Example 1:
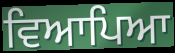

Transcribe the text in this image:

ਵਿਆਪਿਆ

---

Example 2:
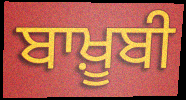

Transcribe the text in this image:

ਬਾਖ਼ੂਬੀ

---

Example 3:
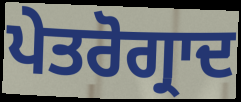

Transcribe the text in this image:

ਪੇਤਰੋਗ੍ਰਾਦ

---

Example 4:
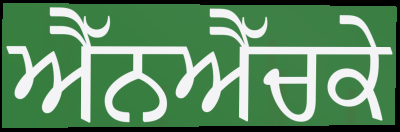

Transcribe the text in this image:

ਐੱਨਐੱਚਕੇ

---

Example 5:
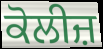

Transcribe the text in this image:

ਕੋਲੀਜ਼